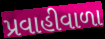
પ્રવાહીવાળા